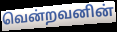
வென்றவனின்